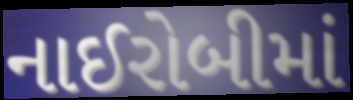
નાઈરોબીમાં